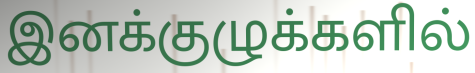
இனக்குழுக்களில்